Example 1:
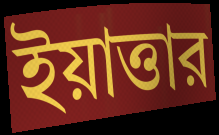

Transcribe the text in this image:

ইয়াত্তার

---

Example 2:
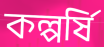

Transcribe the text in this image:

কল্পর্ষি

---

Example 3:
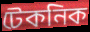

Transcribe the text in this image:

টেকনিক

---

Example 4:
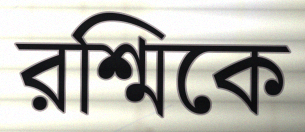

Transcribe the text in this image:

রশ্মিকে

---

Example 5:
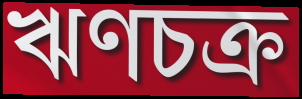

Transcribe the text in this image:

ঋণচক্র